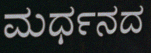
ಮರ್ಧನದ